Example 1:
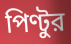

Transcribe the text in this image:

পিণ্টুর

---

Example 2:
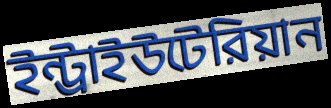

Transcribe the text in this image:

ইন্ট্রাইউটেরিয়ান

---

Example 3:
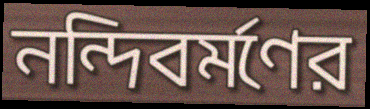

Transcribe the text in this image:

নন্দিবর্মণের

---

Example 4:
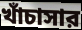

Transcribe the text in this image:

খাঁচাসার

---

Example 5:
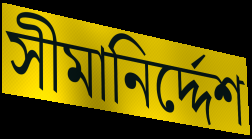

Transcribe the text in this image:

সীমানির্দ্দেশ